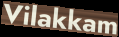
Vilakkam